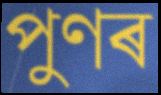
পুণৰ